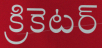
క్రికెటర్